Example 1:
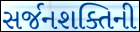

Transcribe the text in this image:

સર્જનશક્તિની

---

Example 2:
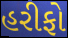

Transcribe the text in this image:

હરીફો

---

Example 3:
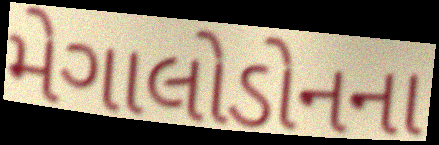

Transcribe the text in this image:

મેગાલોડોનના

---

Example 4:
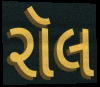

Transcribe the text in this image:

રૉલ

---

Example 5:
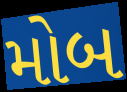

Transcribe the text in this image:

મોબ